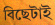
বিছেটাই